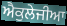
ਐਕੁਲੇਜੀਆ